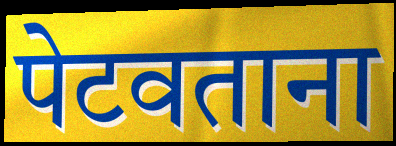
पेटवताना